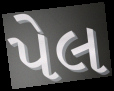
પેલ